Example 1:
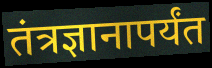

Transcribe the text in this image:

तंत्रज्ञानापर्यंत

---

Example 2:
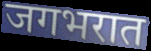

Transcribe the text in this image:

जगभरात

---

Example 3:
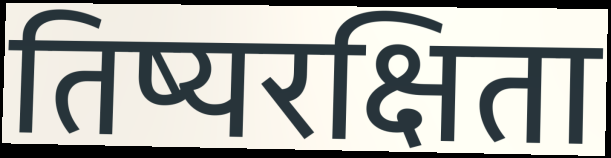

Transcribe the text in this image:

तिष्यरक्षिता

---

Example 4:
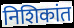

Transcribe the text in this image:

निशिकांत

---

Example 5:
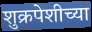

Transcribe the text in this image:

शुक्रपेशीच्या